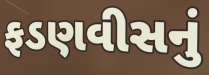
ફડણવીસનું